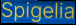
Spigelia